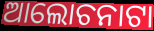
ଆଲୋଚନାଟା